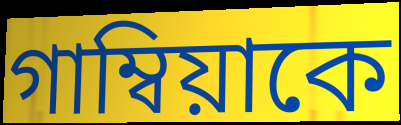
গাম্বিয়াকে